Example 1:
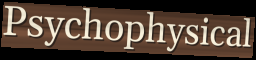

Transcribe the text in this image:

Psychophysical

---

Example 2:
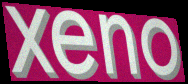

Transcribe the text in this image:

xeno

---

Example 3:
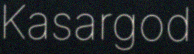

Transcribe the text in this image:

Kasargod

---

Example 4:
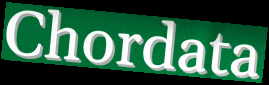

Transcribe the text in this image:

Chordata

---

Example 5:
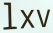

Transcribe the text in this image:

lxv